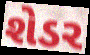
શેડર